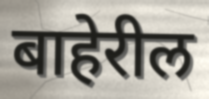
बाहेरील